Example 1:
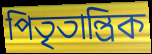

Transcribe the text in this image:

পিতৃতান্ত্রিক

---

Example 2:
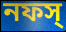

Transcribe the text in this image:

নফস্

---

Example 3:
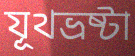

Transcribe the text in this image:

যূথভ্রষ্টা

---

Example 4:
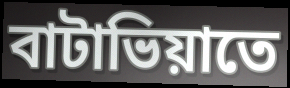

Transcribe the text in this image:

বাটাভিয়াতে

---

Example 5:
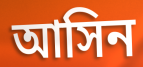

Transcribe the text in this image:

আসিন